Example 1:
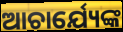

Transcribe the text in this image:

ଆଚାର୍ଯ୍ୟେଙ୍କ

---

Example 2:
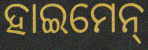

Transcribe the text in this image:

ହାଇମେନ୍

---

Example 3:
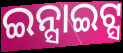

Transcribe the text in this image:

ଇନ୍ସାଇଟ୍ସ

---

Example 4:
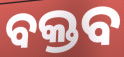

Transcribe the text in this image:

ବକ୍ତବ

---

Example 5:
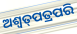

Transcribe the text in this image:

ଅଶ୍ଵତ୍‌ପତ୍ରପରି